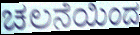
ಚಲನೆಯಿಂದ